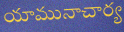
యామునాచార్య